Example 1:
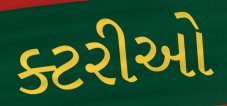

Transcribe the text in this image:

ક્ટરીઓ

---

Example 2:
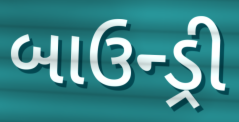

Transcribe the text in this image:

બાઉન્ડ્રી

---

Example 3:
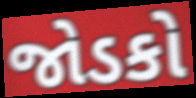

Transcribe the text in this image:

જોડકો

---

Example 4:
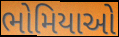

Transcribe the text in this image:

ભોમિયાઓ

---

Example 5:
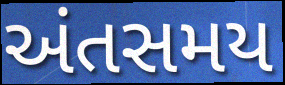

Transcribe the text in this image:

અંતસમય